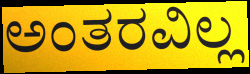
ಅಂತರವಿಲ್ಲ